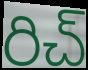
రిచ్